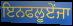
ਇਨਫਲੂਏਂਜਾ